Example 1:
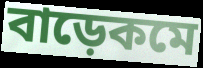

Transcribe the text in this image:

বাড়েকমে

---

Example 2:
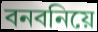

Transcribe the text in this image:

বনবনিয়ে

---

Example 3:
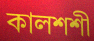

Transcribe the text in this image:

কালশশী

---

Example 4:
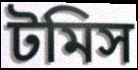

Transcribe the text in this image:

টমিস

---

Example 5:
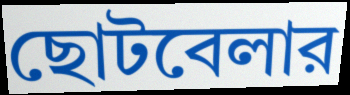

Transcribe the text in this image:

ছোটবেলার